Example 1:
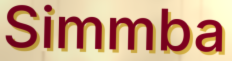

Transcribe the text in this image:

Simmba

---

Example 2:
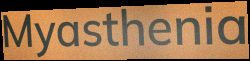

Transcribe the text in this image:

Myasthenia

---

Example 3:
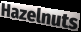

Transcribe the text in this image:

Hazelnuts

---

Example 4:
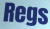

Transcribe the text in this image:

Regs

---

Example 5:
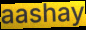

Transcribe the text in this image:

aashay